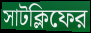
সাটক্লিফের